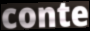
conte